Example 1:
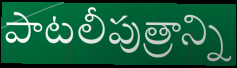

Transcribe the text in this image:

పాటలీపుత్రాన్ని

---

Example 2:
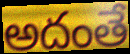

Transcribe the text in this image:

అదంతే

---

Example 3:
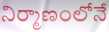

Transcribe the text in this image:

నిర్మాణంలోనే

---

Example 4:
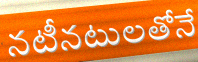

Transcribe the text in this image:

నటీనటులతోనే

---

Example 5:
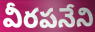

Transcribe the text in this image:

వీరపనేని